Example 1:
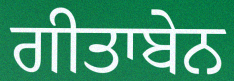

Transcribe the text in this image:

ਗੀਤਾਬੇਨ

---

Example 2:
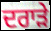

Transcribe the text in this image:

ਦਰਾੜੇ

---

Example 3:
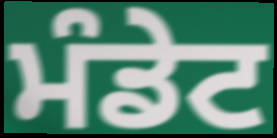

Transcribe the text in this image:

ਮੰਡੇਟ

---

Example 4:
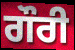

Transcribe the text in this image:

ਗੌਰੀ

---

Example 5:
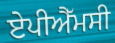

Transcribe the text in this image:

ਏਪੀਐੱਮਸੀ